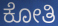
ಕೋತಿ